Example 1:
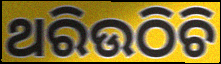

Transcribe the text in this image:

ଥରିଉଠିଚି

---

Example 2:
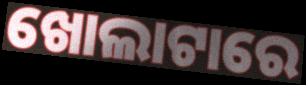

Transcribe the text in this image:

ଖୋଲାଟାରେ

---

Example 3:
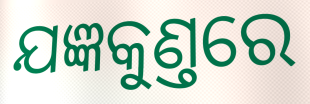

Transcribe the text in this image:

ଯଜ୍ଞକୁଣ୍ତରେ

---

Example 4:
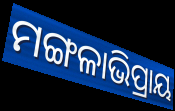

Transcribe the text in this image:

ମଙ୍ଗଳାଭିପ୍ରାୟ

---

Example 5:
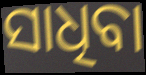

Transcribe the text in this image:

ସାଧିବା